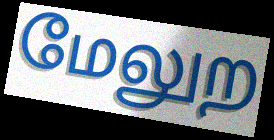
மேலுற